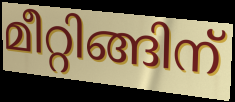
മീറ്റിങ്ങിന്